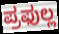
ಪ್ರಫುಲ್ಲ